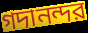
গদানন্দর